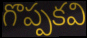
గొప్పకవి